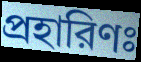
প্রহারিণঃ